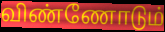
விண்ணோடும்